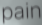
pain